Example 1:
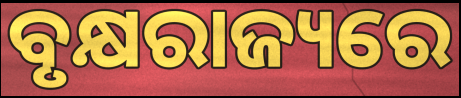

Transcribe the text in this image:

ବୃକ୍ଷରାଜ୍ୟରେ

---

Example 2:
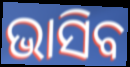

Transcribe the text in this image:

ଭାସିବ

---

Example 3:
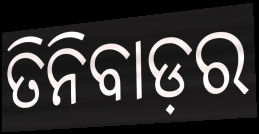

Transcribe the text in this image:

ତିନିବାଡ଼ର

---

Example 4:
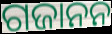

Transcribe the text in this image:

ଗଜାନନ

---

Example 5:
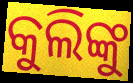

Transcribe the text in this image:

କୁଲିଙ୍କୁ